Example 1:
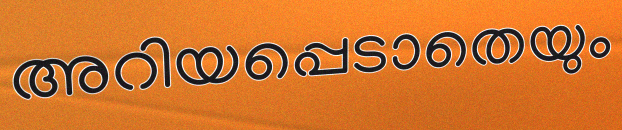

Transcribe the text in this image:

അറിയപ്പെടാതെയും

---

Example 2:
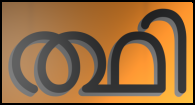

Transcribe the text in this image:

ത്ഥി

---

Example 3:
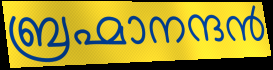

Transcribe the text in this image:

ബ്രഹ്മാനന്ദൻ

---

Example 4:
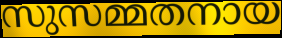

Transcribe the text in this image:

സുസമ്മതനായ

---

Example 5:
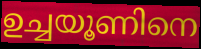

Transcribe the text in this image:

ഉച്ചയൂണിനെ